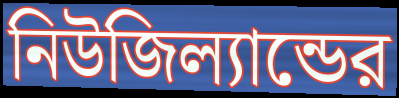
নিউজিল্যান্ডের